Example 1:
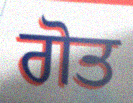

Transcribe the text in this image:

ਗੋਤ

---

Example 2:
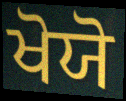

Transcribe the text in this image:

ਖੋਯੋ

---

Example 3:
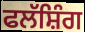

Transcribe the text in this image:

ਫਲੱਸ਼ਿੰਗ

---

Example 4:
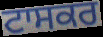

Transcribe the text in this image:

ਟਾਸਕਰ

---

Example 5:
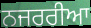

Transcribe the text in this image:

ਨਜਰਰੀਆ